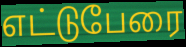
எட்டுபேரை